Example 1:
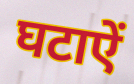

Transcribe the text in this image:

घटाऐं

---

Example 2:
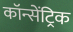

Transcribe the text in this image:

कॉन्सेंट्रिक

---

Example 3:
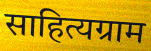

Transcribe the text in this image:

साहित्यग्राम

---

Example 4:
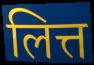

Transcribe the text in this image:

लित्त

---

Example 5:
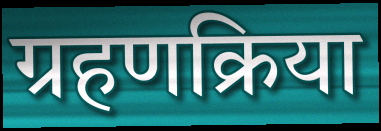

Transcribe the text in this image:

ग्रहणक्रिया